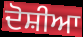
ਦੋਸ਼ੀਆ